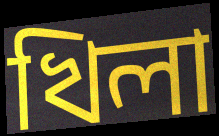
খিলা